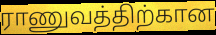
ராணுவத்திற்கான